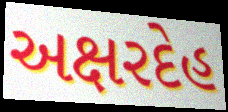
અક્ષરદેહ